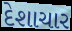
દેશાચાર